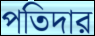
পতিদার